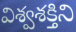
విశ్వశక్తిని